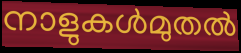
നാളുകൾമുതൽ